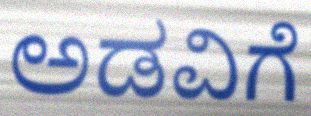
ಅಡವಿಗೆ